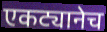
एकट्यानेच